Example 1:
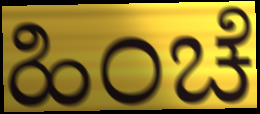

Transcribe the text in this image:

ಹಿಂಚೆ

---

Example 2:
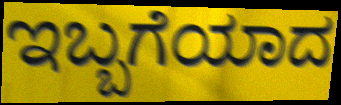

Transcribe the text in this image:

ಇಬ್ಬಗೆಯಾದ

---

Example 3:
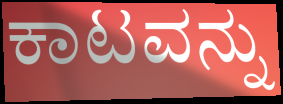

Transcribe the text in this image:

ಕಾಟವನ್ನು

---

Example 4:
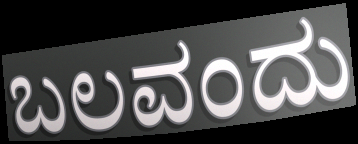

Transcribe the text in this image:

ಬಲವಂದು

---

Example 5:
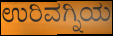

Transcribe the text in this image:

ಉರಿವಗ್ನಿಯ